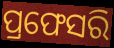
ପ୍ରଫେସରି